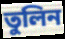
তুলিন